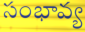
సంభావ్య